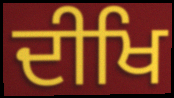
ਦੀਖਿ